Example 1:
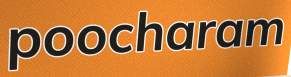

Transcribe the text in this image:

poocharam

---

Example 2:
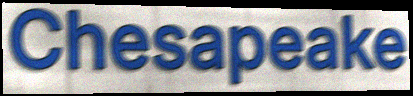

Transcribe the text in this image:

Chesapeake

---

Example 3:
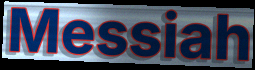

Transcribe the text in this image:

Messiah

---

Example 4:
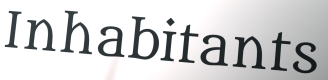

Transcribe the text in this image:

Inhabitants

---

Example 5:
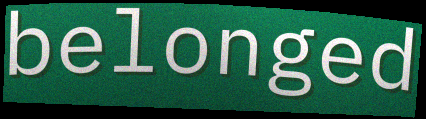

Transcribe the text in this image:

belonged